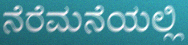
ನೆರೆಮನೆಯಲ್ಲಿ